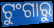
ଟୁଂଗାରୁ